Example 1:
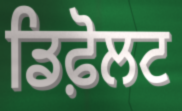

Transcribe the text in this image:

ਡਿਫ਼ੋਲਟ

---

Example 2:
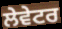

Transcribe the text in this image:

ਲੇਵੇਟਰ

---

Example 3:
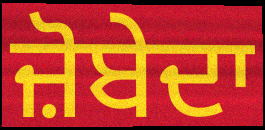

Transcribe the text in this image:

ਜ਼ੋਬੇਦਾ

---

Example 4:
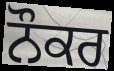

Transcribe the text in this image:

ਨੌਕਰ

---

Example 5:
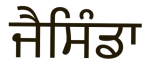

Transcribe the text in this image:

ਜੈਸਿੰਡਾ